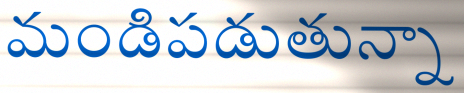
మండిపడుతున్నా